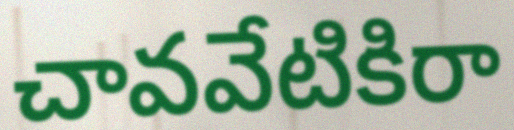
చావవేటికిరా